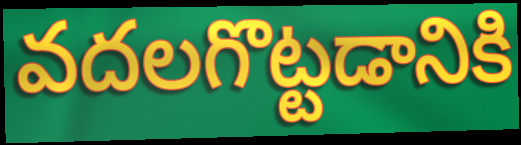
వదలగొట్టడానికి